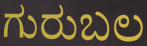
ಗುರುಬಲ